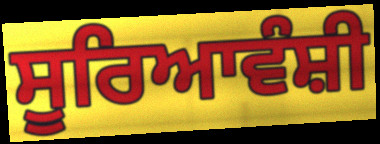
ਸੂਰਿਆਵੰਸ਼ੀ